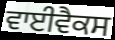
ਵਾਈਵੈਕਸ